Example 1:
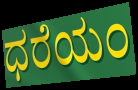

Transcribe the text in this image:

ಧರೆಯಂ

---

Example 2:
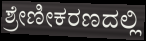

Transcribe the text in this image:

ಶ್ರೇಣೀಕರಣದಲ್ಲಿ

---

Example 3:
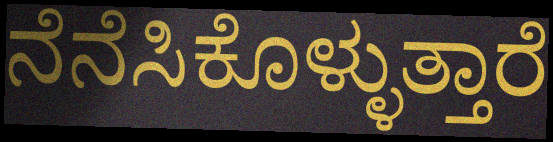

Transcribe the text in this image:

ನೆನೆಸಿಕೊಳ್ಳುತ್ತಾರೆ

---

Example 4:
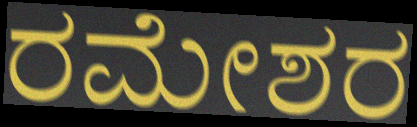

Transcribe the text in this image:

ರಮೇಶರ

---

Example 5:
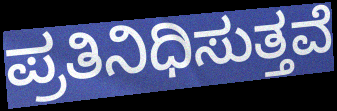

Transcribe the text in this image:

ಪ್ರತಿನಿಧಿಸುತ್ತವೆ